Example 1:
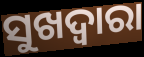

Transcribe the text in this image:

ସୁଖଦ୍ଵାରା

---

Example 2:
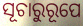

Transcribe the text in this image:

ସୂଚାରୁରୂପେ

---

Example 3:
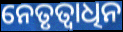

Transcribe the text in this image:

ନେତୃତ୍ୱାଧିନ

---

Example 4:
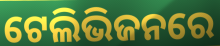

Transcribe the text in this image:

ଟେଲିଭିଜନରେ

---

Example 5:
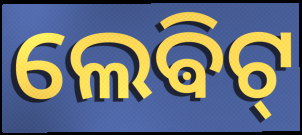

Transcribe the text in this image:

ଲେଵିଟ୍